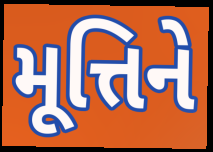
મૂત્તિને